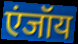
एंजॉय